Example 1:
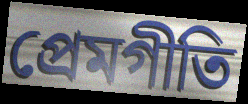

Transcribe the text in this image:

প্রেমগীতি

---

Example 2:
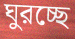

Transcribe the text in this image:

ঘুরচ্ছে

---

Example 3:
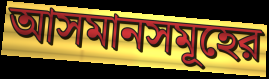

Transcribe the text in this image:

আসমানসমূহের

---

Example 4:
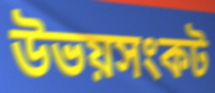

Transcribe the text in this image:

উভয়সংকট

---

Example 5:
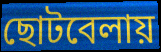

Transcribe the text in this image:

ছোটবেলায়